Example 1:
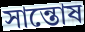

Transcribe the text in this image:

সান্তোষ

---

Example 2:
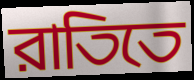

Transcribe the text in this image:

রাতিতে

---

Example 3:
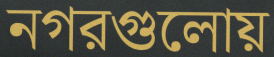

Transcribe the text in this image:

নগরগুলোয়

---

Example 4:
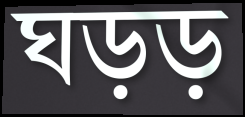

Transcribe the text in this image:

ঘড়ড়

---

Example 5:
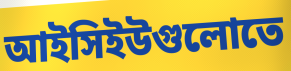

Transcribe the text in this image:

আইসিইউগুলোতে